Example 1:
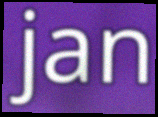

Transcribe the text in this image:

jan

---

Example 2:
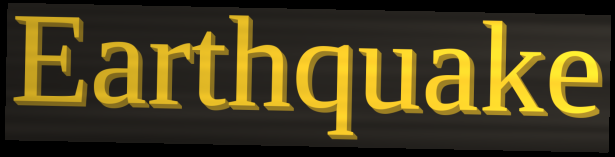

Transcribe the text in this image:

Earthquake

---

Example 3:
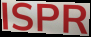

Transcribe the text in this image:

ISPR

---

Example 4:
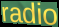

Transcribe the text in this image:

radio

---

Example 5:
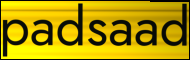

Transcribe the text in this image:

padsaad